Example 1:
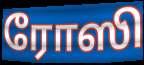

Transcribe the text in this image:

ரோஸி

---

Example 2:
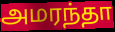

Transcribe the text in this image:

அமரந்தா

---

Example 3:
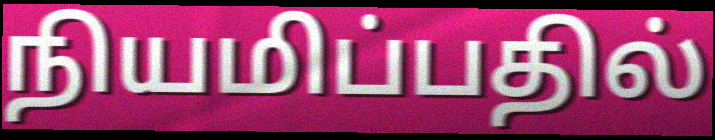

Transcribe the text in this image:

நியமிப்பதில்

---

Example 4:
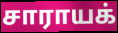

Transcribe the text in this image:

சாராயக்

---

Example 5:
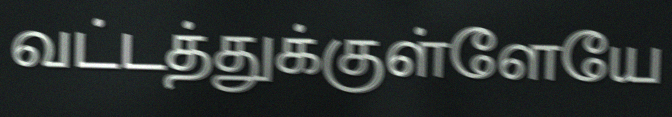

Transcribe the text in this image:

வட்டத்துக்குள்ளேயே